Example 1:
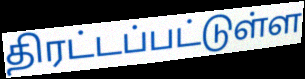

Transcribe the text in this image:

திரட்டப்பட்டுள்ள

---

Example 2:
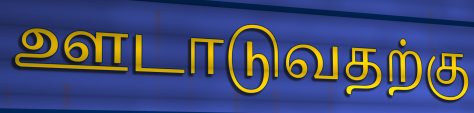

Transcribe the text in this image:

ஊடாடுவதற்கு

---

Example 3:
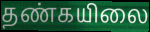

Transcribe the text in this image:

தண்கயிலை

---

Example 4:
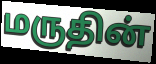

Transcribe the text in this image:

மருதின்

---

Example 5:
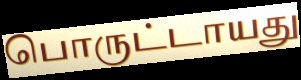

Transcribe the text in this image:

பொருட்டாயது